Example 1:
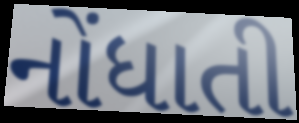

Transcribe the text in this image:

નોંધાતી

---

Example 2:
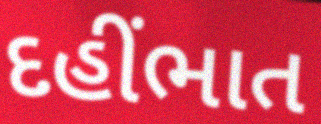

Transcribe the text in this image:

દહીંભાત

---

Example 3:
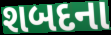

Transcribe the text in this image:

શબદના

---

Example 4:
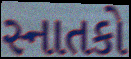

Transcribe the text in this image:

સ્નાતકો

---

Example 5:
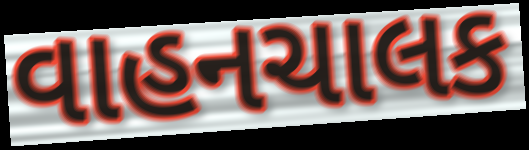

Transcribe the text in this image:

વાહનચાલક